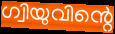
ഗ്വിയുവിന്റെ